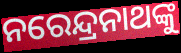
ନରେନ୍ଦ୍ରନାଥଙ୍କୁ